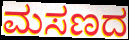
ಮಸಣದ